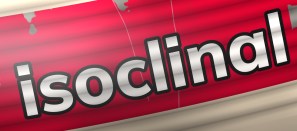
isoclinal